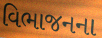
વિભાજનના